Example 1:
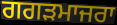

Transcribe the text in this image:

ਗਗੜਮਾਜਰਾ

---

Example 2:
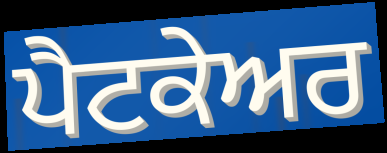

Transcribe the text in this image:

ਪੈਟਕੇਅਰ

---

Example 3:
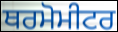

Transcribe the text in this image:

ਥਰਮੋਮੀਟਰ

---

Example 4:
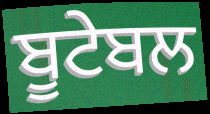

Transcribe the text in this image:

ਬੂਟੇਬਲ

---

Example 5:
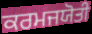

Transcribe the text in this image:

ਕਰਮਜਯੋਤੀ